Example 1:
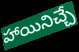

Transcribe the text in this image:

హాయినిచ్చే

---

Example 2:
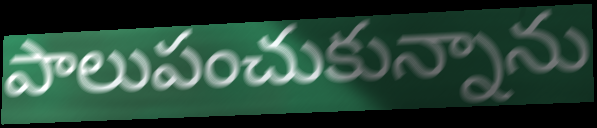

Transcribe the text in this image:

పాలుపంచుకున్నాను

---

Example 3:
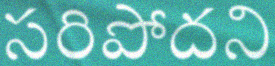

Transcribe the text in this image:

సరిపోదని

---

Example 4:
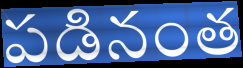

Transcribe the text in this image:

పడినంత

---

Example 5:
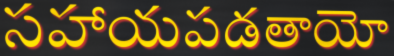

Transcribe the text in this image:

సహాయపడతాయో